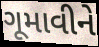
ગૂમાવીને